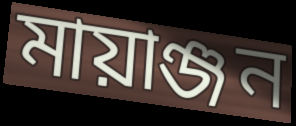
মায়াঞ্জন